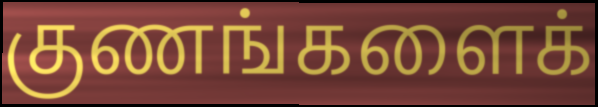
குணங்களைக்